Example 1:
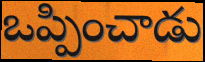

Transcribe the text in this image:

ఒప్పించాడు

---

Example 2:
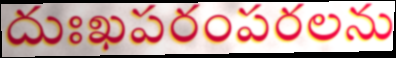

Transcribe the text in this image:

దుఃఖపరంపరలను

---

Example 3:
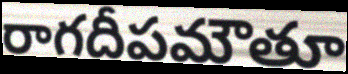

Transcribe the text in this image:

రాగదీపమౌతూ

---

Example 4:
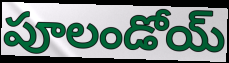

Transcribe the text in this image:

పూలండోయ్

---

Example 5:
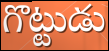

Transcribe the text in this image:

గొట్టుడు